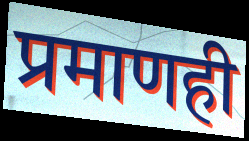
प्रमाणही